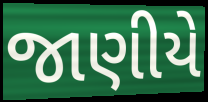
જાણીયે